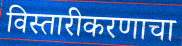
विस्तारीकरणाचा